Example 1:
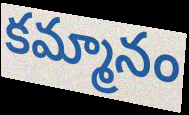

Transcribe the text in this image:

కమ్మానం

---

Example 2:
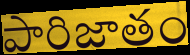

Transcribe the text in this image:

పారిజాతం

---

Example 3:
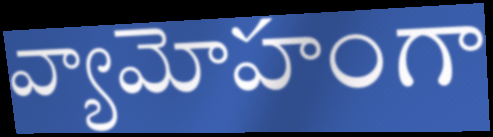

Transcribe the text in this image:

వ్యామోహంగా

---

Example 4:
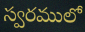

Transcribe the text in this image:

స్వరములో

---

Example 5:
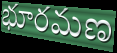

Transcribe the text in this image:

భూరమణ